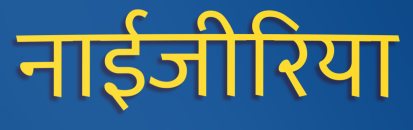
नाईजीरिया